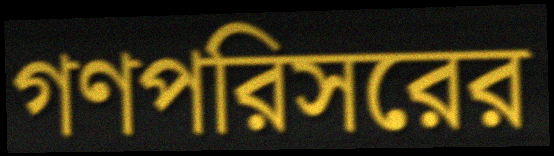
গণপরিসরের